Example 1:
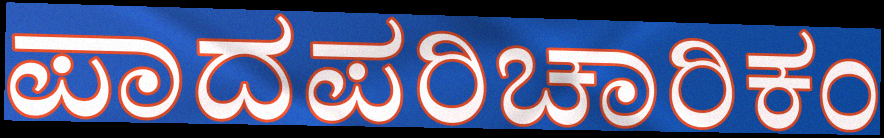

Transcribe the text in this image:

ಪಾದಪರಿಚಾರಿಕಂ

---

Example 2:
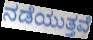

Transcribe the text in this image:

ನಡೆಯುತ್ತವೆ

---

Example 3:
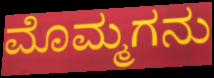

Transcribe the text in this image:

ಮೊಮ್ಮಗನು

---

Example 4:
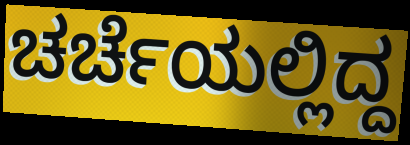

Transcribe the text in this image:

ಚರ್ಚೆಯಲ್ಲಿದ್ದ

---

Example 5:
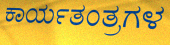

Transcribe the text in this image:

ಕಾರ್ಯತಂತ್ರಗಳ